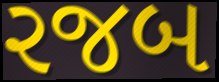
રજબ